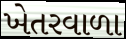
ખેતરવાળા